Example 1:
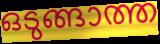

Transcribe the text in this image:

ഒടുങ്ങാത്ത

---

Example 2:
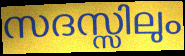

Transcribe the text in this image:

സദസ്സിലും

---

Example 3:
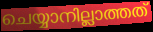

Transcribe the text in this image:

ചെയ്യാനില്ലാത്തത്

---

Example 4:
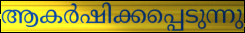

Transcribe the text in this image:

ആകർഷിക്കപ്പെടുന്നു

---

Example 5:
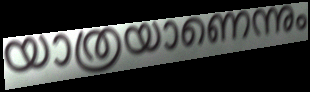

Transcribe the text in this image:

യാത്രയാണെന്നും